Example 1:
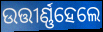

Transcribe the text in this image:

ଉତ୍ତୀର୍ଣ୍ଣହେଲେ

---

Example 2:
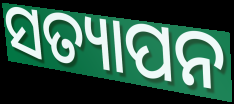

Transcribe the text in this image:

ସତ୍ୟାପନ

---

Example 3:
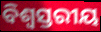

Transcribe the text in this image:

ବିଶ୍ଵସ୍ତରୀୟ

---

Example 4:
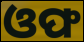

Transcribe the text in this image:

ଓଫ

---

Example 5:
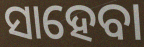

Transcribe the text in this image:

ସାହେବା